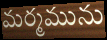
మర్మమును